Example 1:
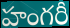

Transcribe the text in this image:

హంగరీ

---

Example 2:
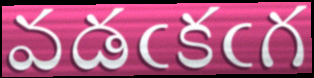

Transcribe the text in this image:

వడఁకఁగ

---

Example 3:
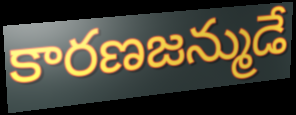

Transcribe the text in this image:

కారణజన్ముడే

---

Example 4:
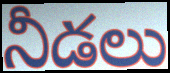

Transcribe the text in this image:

నీడలు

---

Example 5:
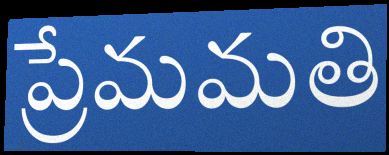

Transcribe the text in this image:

ప్రేమమతి